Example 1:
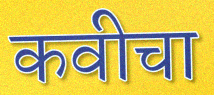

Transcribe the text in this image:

कवीचा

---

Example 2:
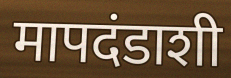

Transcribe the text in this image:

मापदंडाशी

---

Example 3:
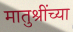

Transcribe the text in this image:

मातुश्रींच्या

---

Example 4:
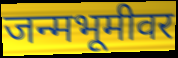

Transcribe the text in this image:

जन्मभूमीवर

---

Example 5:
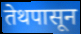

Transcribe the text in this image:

तेथपासून